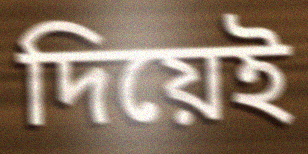
দিয়েই